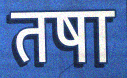
तषा